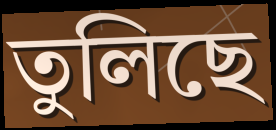
তুলিছে